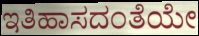
ಇತಿಹಾಸದಂತೆಯೇ